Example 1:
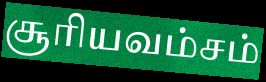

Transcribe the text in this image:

சூரியவம்சம்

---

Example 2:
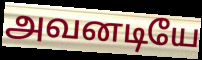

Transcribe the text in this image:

அவனடியே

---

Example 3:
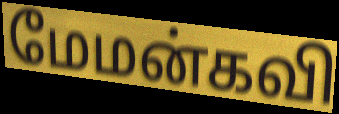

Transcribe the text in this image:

மேமன்கவி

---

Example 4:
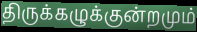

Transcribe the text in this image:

திருக்கழுக்குன்றமும்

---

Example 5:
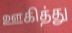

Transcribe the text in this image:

ஊகித்து